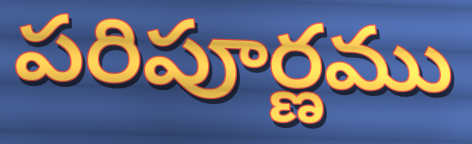
పరిపూర్ణము